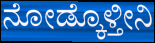
ನೋಡ್ಕೊಳ್ತೀನಿ